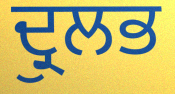
ਦ੍ਰੁਲਭ